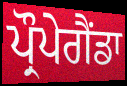
ਪ੍ਰੌਪੇਗੈਂਡਾ